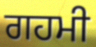
ਗਹਮੀ